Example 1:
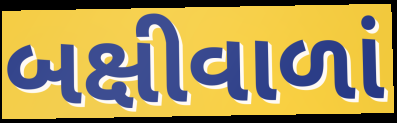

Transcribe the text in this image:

બક્ષીવાળાં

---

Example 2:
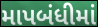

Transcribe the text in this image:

માપબંધીમાં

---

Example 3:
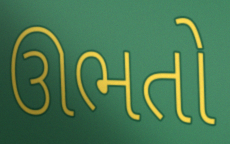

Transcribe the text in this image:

ઊભતો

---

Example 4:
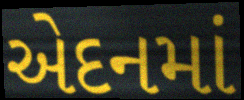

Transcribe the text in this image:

એદનમાં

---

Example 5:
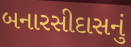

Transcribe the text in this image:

બનારસીદાસનું